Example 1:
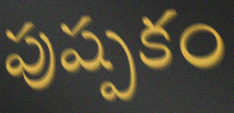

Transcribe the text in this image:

పుష్పకం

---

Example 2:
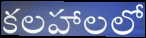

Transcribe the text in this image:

కలహాలలో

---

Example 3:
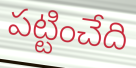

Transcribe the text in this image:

పట్టించేది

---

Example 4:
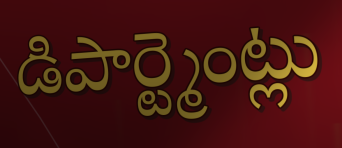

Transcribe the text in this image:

డిపార్ట్మెంట్లు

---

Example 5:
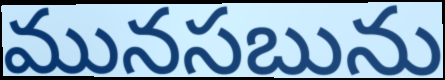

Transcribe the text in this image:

మునసబును